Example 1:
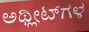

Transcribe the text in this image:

ಅಥ್ಲೀಟ್‌ಗಳ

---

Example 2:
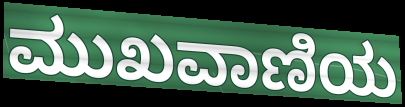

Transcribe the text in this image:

ಮುಖವಾಣಿಯ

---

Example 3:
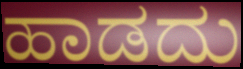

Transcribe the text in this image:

ಹಾಡದು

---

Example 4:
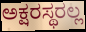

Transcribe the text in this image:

ಅಕ್ಷರಸ್ಥರಲ್ಲ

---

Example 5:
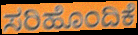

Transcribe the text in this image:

ಸರಿಹೊಂದಿಕೆ